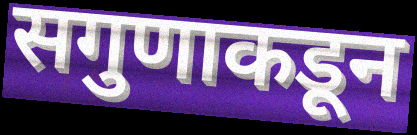
सगुणाकडून